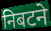
निबटने